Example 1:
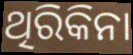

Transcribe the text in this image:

ଥିରିକିନା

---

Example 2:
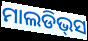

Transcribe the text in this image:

ମାଲଡିଭ୍‌ସ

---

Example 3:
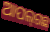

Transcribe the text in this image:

ଆପଲ୍‍ଗଛ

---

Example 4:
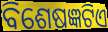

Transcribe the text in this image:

ବିଶେଷଜ୍ଞଟିଏ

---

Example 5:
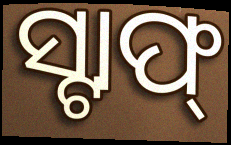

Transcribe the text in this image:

ସ୍ଟାଫ୍